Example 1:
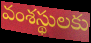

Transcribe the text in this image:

వంశస్థులకు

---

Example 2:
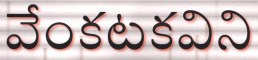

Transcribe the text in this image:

వేంకటకవిని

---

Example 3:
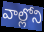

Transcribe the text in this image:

వాల్లోని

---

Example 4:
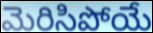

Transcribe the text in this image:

మెరిసిపోయే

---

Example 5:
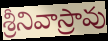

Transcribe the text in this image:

శ్రీనివాస్రావు